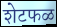
शेटफळ